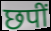
छपीं